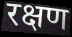
रक्षण